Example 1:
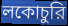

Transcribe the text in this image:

লকোচুরি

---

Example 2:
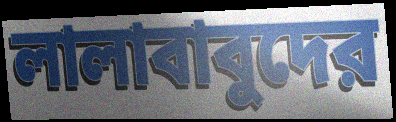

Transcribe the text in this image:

লালাবাবুদের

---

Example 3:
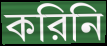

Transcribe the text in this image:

করিনি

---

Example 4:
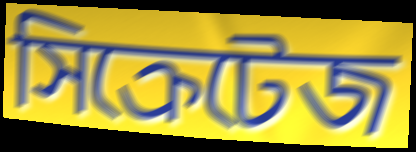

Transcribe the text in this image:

সিক্রেটেজ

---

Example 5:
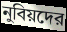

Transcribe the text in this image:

নুবিয়দের